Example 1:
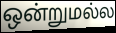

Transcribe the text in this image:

ஒன்றுமல்ல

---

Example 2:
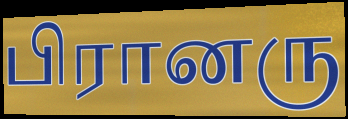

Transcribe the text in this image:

பிரானரு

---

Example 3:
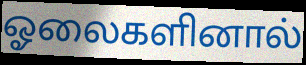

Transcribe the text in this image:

ஓலைகளினால்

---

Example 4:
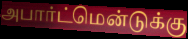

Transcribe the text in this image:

அபார்ட்மென்டுக்கு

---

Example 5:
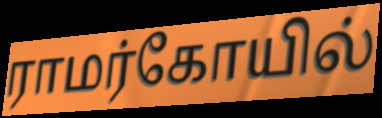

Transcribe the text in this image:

ராமர்கோயில்